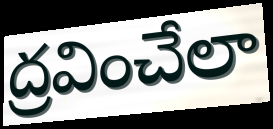
ద్రవించేలా